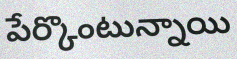
పేర్కొంటున్నాయి